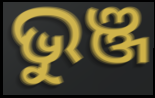
ଭୁଞ୍ଜ